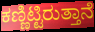
ಕಣ್ಣಿಟ್ಟಿರುತ್ತಾನೆ